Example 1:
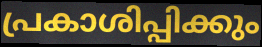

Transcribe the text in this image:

പ്രകാശിപ്പിക്കും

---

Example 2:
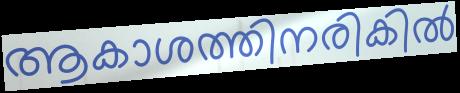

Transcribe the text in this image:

ആകാശത്തിനരികിൽ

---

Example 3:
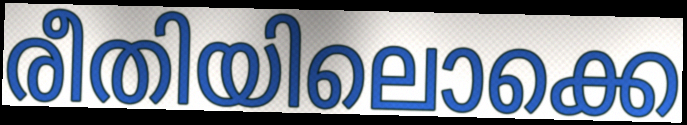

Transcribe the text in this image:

രീതിയിലൊക്കെ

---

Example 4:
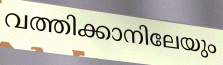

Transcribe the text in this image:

വത്തിക്കാനിലേയും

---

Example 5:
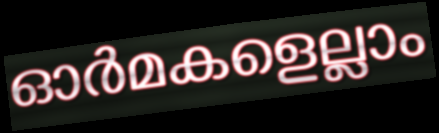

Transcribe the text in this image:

ഓർമകളെല്ലാം